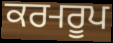
ਕਰ੍ਮਰੂਪ